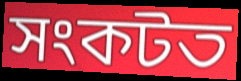
সংকটত